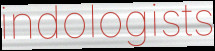
indologists